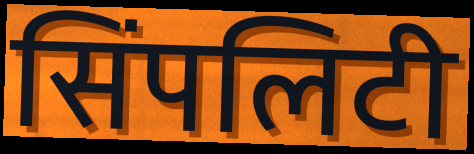
सिंपलिटी